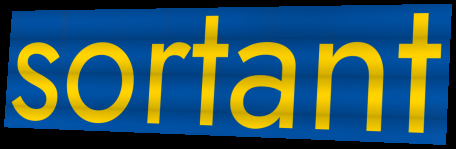
sortant